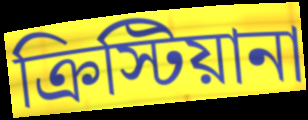
ক্রিস্টিয়ানা